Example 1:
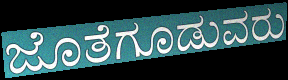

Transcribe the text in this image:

ಜೊತೆಗೂಡುವರು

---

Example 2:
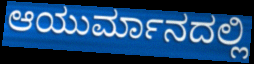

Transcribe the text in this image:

ಆಯುರ್ಮಾನದಲ್ಲಿ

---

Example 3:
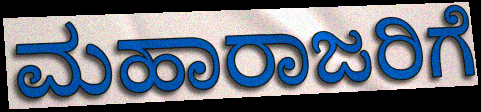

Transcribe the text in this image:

ಮಹಾರಾಜರಿಗೆ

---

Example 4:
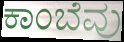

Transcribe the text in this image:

ಕಾಂಬೆವು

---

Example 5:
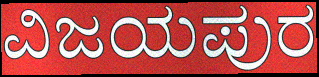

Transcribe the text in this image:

ವಿಜಯಪುರ